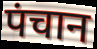
पंचान